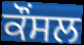
ਕੌਂਸਲ